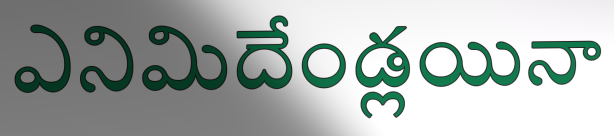
ఎనిమిదేండ్లయినా